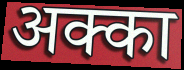
अक्का